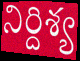
నిర్దిశ్య